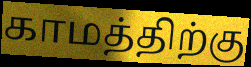
காமத்திற்கு